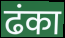
ढंका